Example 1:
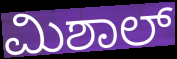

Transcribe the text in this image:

ಮಿಶಾಲ್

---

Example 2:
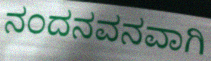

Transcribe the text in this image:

ನಂದನವನವಾಗಿ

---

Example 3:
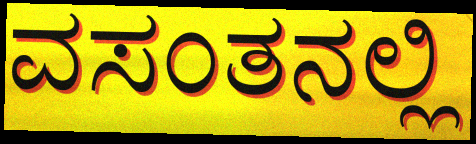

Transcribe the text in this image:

ವಸಂತನಲ್ಲಿ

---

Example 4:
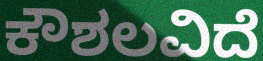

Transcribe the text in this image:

ಕೌಶಲವಿದೆ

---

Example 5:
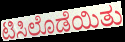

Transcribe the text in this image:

ಟಿಸಿಲೊಡೆಯಿತು